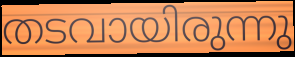
തടവായിരുന്നു